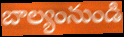
బాల్యంనుండి